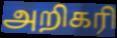
அறிகரி